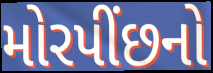
મોરપીંછનો